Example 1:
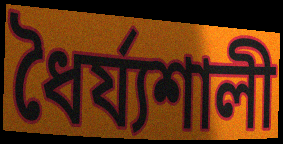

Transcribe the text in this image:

ধৈর্য্যশালী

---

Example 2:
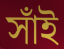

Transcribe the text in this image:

সাঁই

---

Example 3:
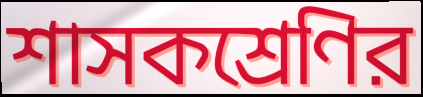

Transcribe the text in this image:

শাসকশ্রেণির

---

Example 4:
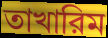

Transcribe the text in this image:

তাখারিম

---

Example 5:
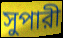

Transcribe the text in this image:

সুপারী